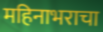
महिनाभराचा